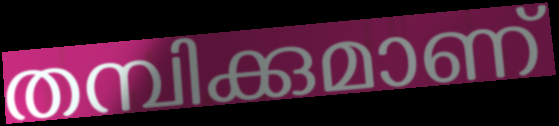
തമ്പിക്കുമാണ്